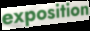
exposition